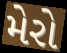
મેરો